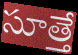
సూత్తే